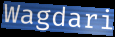
Wagdari